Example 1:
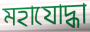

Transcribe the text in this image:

মহাযোদ্ধা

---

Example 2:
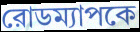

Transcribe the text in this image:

রোডম্যাপকে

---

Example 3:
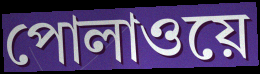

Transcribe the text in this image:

পোলাওয়ে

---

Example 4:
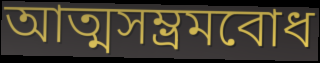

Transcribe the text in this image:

আত্মসম্ভ্রমবোধ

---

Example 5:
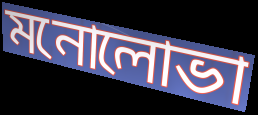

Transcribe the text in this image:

মনোলোভা